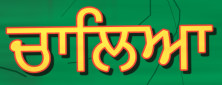
ਚਾਲਿਆ